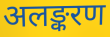
अलङ्करण